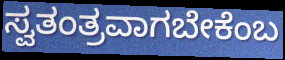
ಸ್ವತಂತ್ರವಾಗಬೇಕೆಂಬ